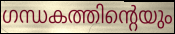
ഗന്ധകത്തിന്റെയും